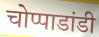
चोप्पाडांडी